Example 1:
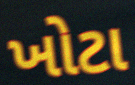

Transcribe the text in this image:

ખોટા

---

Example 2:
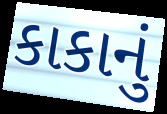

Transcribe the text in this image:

કાકાનું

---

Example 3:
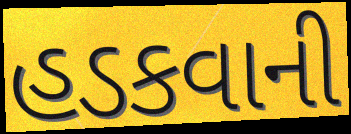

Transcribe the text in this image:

હડકવાની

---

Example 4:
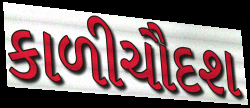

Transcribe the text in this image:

કાળીચૌદશ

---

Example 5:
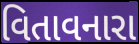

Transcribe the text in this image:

વિતાવનારા